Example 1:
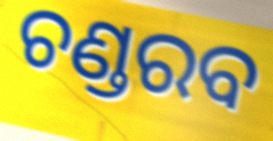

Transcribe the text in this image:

ଚଣ୍ଡରବ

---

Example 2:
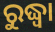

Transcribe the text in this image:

ରୁଦ୍ଧ୍ୱା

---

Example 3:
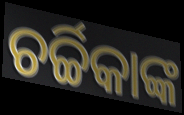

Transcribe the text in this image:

ଚର୍ଚ୍ଚିକାଙ୍କ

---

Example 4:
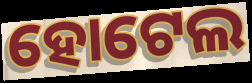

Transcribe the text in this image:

ହୋଟେଲ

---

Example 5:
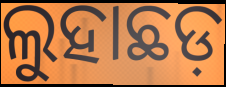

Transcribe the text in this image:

ଲୁହାଛଡ଼